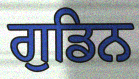
ਗੁਡਿਨ